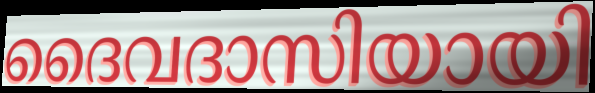
ദൈവദാസിയായി